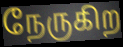
நேருகிற